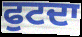
ਫੁਟਦਾ